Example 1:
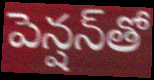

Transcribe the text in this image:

పెన్షన్‌తో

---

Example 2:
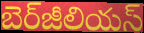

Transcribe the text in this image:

బెర్‌జీలియస్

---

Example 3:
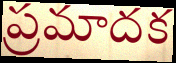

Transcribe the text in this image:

ప్రమాదక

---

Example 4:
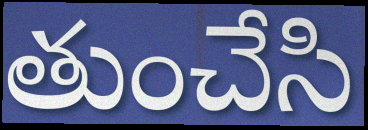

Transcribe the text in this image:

తుంచేసి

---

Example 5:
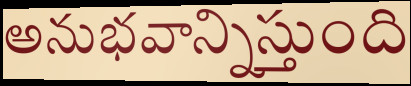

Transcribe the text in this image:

అనుభవాన్నిస్తుంది